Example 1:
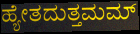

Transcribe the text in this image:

ಹ್ಯೇತದುತ್ತಮಮ್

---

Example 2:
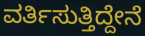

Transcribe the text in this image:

ವರ್ತಿಸುತ್ತಿದ್ದೇನೆ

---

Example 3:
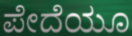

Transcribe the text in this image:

ಪೇದೆಯೂ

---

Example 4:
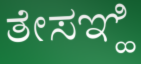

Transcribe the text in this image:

ತೇಸಞ್ಹಿ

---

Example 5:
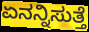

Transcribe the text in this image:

ಏನನ್ನಿಸುತ್ತೆ